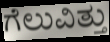
ಗೆಲುವಿತ್ತು